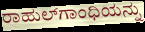
ರಾಹುಲ್‌ಗಾಂಧಿಯನ್ನು